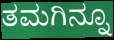
ತಮಗಿನ್ನೂ